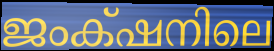
ജംക്‌ഷനിലെ